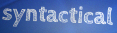
syntactical